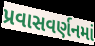
પ્રવાસવર્ણનમાં